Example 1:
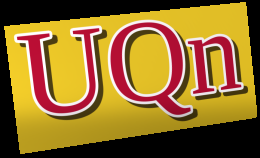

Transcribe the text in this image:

UQn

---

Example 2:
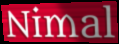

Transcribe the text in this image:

Nimal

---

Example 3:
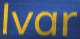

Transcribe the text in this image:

Ivar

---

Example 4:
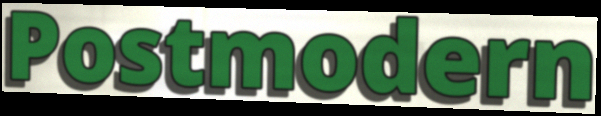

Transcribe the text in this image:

Postmodern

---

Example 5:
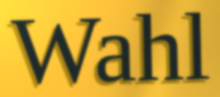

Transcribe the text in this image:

Wahl